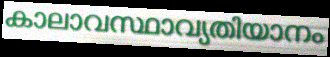
കാലാവസ്ഥാവ്യതിയാനം